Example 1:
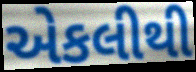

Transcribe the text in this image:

એકલીથી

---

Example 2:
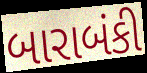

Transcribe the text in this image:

બારાબંકી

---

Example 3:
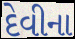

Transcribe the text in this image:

દેવીના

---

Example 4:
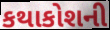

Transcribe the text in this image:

કથાકોશની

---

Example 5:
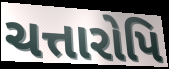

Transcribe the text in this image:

ચત્તારોપિ